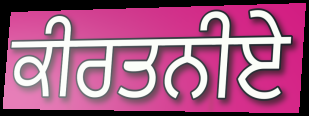
ਕੀਰਤਨੀਏ